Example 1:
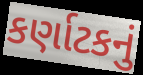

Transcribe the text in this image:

કર્ણાટકનું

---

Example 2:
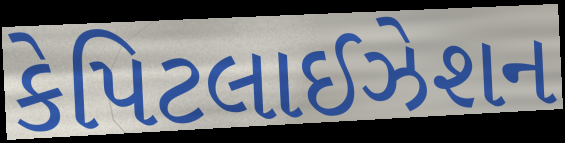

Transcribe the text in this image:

કેપિટલાઈઝેશન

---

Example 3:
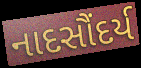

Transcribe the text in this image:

નાદસૌંદર્ય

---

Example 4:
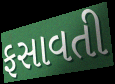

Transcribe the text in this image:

ફસાવતી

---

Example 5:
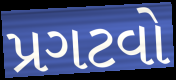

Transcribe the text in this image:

પ્રગટવો